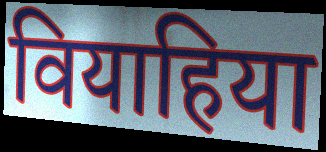
वियाहिया